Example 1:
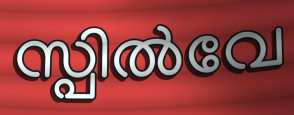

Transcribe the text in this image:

സ്പിൽവേ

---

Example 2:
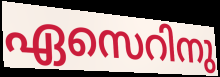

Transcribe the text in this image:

ഏസെറിനു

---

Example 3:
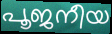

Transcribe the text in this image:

പൂജനീയ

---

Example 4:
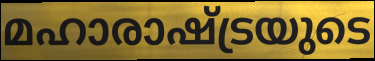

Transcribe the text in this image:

മഹാരാഷ്ട്രയുടെ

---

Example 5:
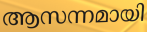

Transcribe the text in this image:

ആസന്നമായി